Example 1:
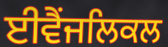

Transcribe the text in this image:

ਈਵੈਂਜਲਿਕਲ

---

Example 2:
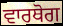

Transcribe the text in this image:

ਵਾਰਥੋਗ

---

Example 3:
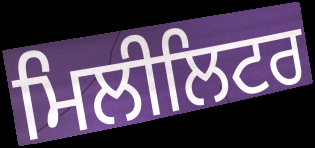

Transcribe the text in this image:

ਮਿਲੀਲਿਟਰ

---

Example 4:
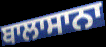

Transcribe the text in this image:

ਬਾਲਾਸਾਨਾ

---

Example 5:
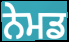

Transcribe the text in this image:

ਨੇਮਡ